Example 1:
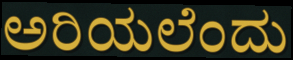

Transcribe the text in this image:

ಅರಿಯಲೆಂದು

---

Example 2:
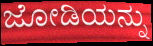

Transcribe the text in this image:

ಜೋಡಿಯನ್ನು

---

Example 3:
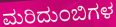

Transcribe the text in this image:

ಮರಿದುಂಬಿಗಳ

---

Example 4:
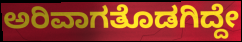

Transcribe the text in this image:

ಅರಿವಾಗತೊಡಗಿದ್ದೇ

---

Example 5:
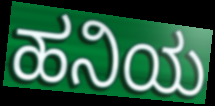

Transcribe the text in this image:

ಹನಿಯ